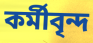
কর্মীবৃন্দ